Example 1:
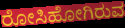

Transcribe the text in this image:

ರೋಸಿಹೋಗಿರುವ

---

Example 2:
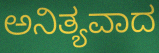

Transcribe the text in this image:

ಅನಿತ್ಯವಾದ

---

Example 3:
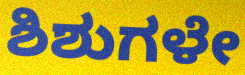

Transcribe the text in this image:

ಶಿಶುಗಳೇ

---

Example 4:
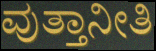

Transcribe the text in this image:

ವುತ್ತಾನೀತಿ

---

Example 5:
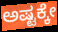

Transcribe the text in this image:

ಅಷ್ಟಕ್ಕೇ